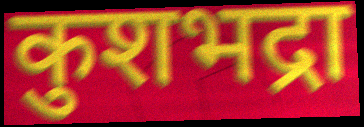
कुशभद्रा